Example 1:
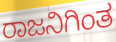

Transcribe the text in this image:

ರಾಜನಿಗಿಂತ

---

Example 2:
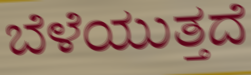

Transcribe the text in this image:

ಬೆಳೆಯುತ್ತದೆ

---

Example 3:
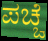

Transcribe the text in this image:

ಪಚ್ಚೆ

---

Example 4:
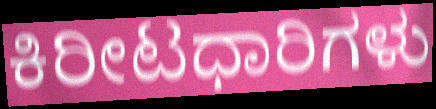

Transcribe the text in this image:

ಕಿರೀಟಧಾರಿಗಳು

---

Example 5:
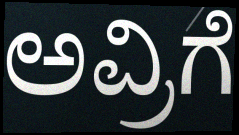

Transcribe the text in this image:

ಅವ್ರಿಗೆ